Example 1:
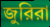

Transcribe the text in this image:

জুরিরা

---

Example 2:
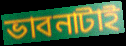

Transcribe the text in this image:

ভাবনাটাই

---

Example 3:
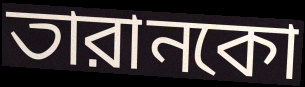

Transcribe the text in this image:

তারানকো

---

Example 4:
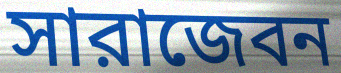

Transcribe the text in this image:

সারাজেবন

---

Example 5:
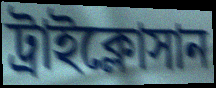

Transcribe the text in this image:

ট্রাইক্লোসান